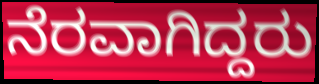
ನೆರವಾಗಿದ್ದರು